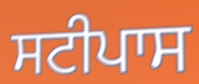
ਸਟੀਪਾਸ